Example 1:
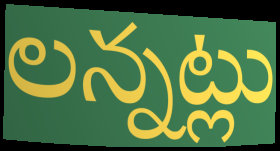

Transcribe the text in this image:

లన్నట్లు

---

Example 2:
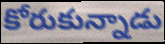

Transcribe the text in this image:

కోరుకున్నాడు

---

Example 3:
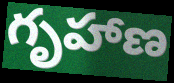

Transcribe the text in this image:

గృహాణ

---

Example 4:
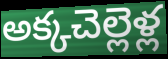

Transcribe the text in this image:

అక్కచెల్లెళ్ల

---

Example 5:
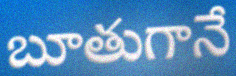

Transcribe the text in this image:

బూతుగానే